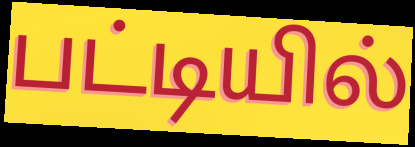
பட்டியில்